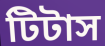
টিটাস